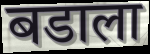
बडाला